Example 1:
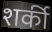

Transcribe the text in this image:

शर्की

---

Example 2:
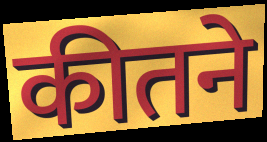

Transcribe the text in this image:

कीतने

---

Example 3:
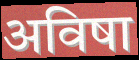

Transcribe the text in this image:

अविषा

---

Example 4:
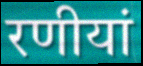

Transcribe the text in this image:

रणीयां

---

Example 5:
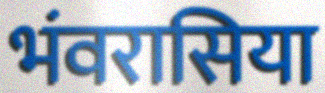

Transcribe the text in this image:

भंवरासिया